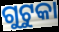
ଗୁଟୁକା